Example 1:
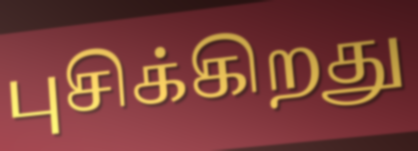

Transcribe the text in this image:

புசிக்கிறது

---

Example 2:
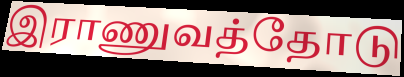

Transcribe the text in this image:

இராணுவத்தோடு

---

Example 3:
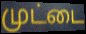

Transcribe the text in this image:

முட்டை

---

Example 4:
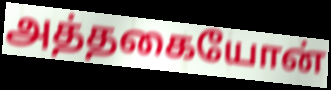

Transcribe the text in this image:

அத்தகையோன்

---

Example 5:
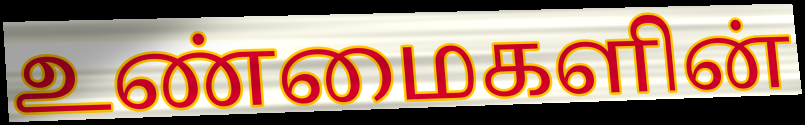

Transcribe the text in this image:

உண்மைகளின்